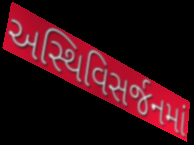
અસ્થિવિસર્જનમાં